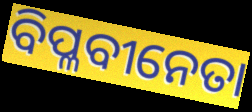
ବିପ୍ଳବୀନେତା